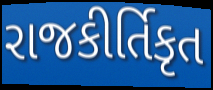
રાજકીર્તિકૃત